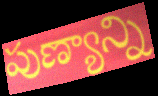
పుణ్యాన్ని